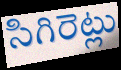
సిగిరెట్లు